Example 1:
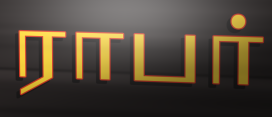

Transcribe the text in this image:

ராபர்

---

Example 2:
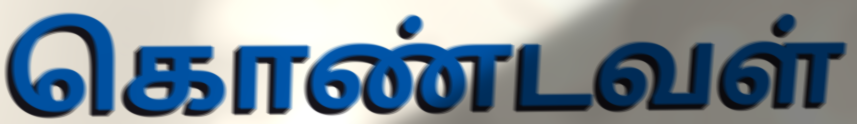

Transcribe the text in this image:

கொண்டவள்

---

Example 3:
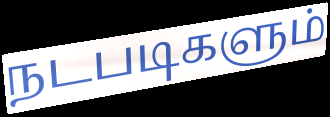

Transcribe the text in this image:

நடபடிகளும்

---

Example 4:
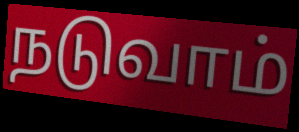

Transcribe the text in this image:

நடுவாம்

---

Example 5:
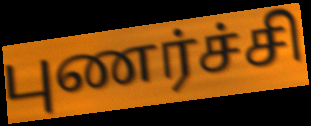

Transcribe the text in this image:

புணர்ச்சி